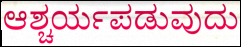
ಆಶ್ಚರ್ಯಪಡುವುದು